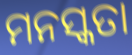
ମନସ୍କତା